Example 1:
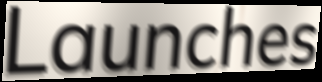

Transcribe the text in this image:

Launches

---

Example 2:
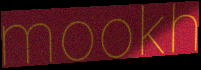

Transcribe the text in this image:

mookh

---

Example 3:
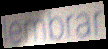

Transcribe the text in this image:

lembrar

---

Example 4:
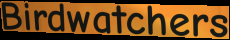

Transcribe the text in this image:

Birdwatchers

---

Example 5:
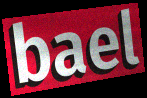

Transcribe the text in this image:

bael